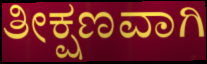
ತೀಕ್ಷಣವಾಗಿ